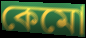
কেমো